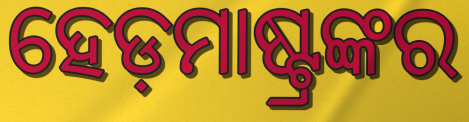
ହେଡ଼ମାଷ୍ଟ୍ରଙ୍କର